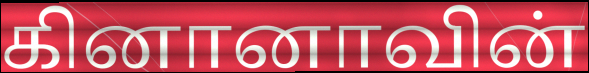
கினானாவின்